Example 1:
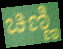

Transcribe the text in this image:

ಚಿಣ್ಣಿ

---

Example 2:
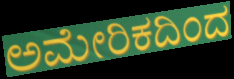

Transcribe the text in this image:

ಅಮೇರಿಕದಿಂದ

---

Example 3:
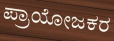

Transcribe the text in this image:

ಪ್ರಾಯೋಜಕರ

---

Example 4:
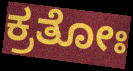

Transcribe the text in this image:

ಕ್ರತೋಃ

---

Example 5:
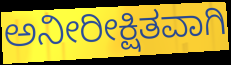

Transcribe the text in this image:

ಅನೀರೀಕ್ಷಿತವಾಗಿ